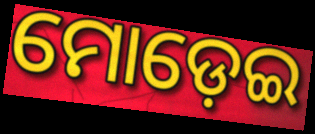
ମୋଡ଼େଇ